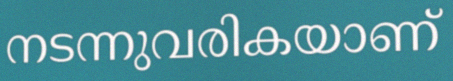
നടന്നുവരികയാണ്